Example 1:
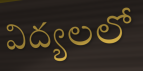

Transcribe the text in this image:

విద్యలలో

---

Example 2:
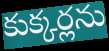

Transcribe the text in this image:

కుక్కర్లను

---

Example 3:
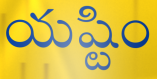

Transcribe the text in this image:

యష్టిం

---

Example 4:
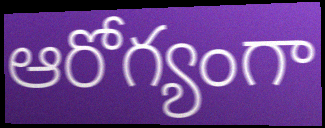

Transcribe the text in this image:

ఆరోగ్యంగా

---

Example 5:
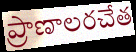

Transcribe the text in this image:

ప్రాణాలరచేత